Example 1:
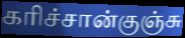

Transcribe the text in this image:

கரிச்சான்குஞ்சு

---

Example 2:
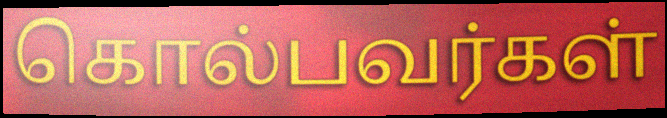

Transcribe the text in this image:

கொல்பவர்கள்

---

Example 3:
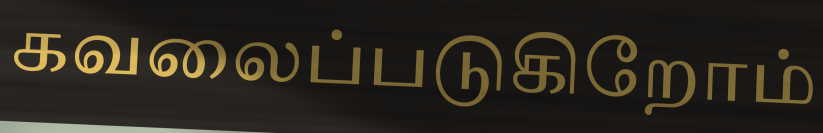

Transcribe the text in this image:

கவலைப்படுகிறோம்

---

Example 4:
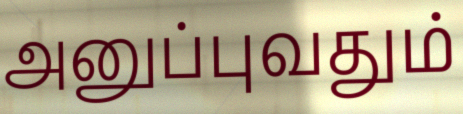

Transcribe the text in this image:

அனுப்புவதும்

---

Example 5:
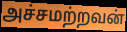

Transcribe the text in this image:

அச்சமற்றவன்